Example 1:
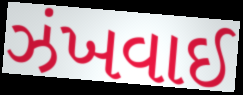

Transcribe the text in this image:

ઝંખવાઈ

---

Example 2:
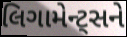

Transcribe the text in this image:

લિગામેન્ટ્સને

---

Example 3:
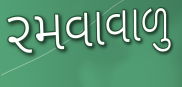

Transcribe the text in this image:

રમવાવાળુ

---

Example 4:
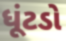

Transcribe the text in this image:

ધૂંટડો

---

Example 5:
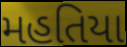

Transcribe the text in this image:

મહતિયા